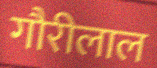
गौरीलाल